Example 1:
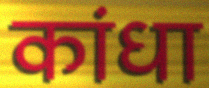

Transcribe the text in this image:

कांधा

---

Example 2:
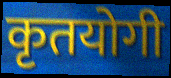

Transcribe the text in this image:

कृतयोगी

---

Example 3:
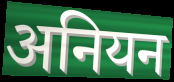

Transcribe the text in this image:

अनियन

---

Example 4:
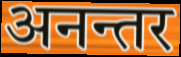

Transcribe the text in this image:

अनन्तर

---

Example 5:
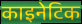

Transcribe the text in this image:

काइनेटिक